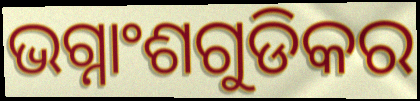
ଭଗ୍ନାଂଶଗୁଡିକର